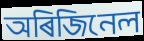
অৰিজিনেল